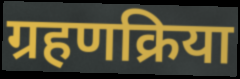
ग्रहणक्रिया